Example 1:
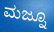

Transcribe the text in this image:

ಮಜ್ನೂ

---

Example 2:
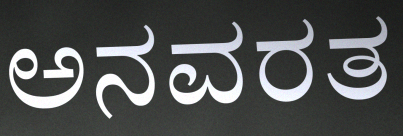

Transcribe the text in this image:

ಅನವರತ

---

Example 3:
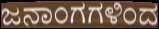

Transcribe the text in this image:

ಜನಾಂಗಗಳಿಂದ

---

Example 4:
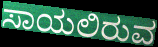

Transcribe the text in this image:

ಸಾಯಲಿರುವ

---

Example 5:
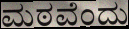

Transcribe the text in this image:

ಮಠವೆಂದು